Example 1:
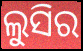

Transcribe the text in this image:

ଲୁସିର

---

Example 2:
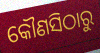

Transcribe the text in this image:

କୌଣସିଠାରୁ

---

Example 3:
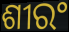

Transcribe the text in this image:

ଶୀରଂ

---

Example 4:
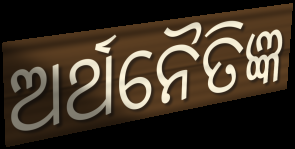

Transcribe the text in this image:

ଅର୍ଥନୈତିଜ୍ଞ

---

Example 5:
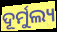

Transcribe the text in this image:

ଦୂର୍ମୁଲ୍ୟ